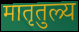
मातृतुल्य